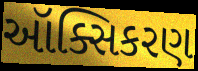
ઑક્સિકરણ